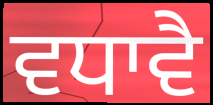
ਵਧਾਵੈ